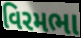
વિરમભા